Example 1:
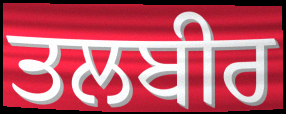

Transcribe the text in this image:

ਤਲਬੀਰ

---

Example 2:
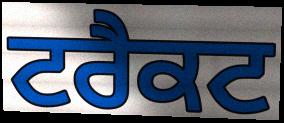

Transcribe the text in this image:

ਟਰੈਕਟ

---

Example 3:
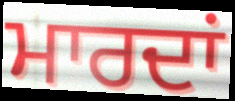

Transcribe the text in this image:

ਮਾਰਦਾਂ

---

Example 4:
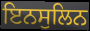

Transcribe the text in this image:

ਇਨਸੁਲਿਨ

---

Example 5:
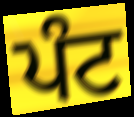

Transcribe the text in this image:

ਪੰਟ